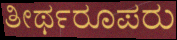
ತೀರ್ಥರೂಪರು